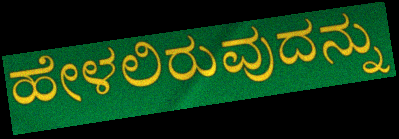
ಹೇಳಲಿರುವುದನ್ನು